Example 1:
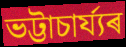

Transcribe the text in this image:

ভট্টাচাৰ্য্যৰ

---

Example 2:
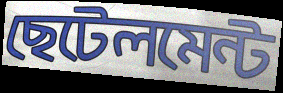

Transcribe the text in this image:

ছেটেলমেন্ট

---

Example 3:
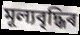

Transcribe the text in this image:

মূল্যবৃদ্ধিৰ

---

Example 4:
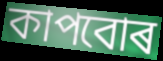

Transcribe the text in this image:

কাপবোৰ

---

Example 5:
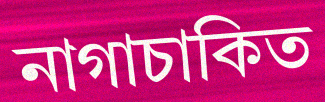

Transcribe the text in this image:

নাগাচাকিত